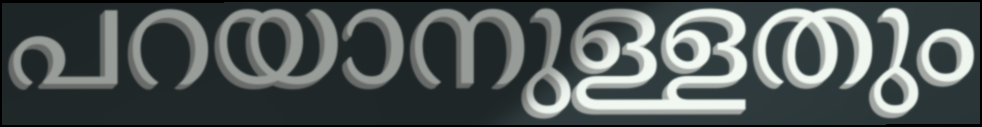
പറയാനുള്ളതും